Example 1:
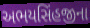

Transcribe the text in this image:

અભયસિંહજીના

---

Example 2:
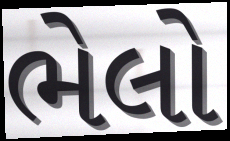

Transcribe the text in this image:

ભેલો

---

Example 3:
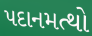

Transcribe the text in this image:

પદાનમત્થો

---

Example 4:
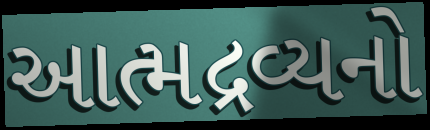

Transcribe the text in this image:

આત્મદ્રવ્યનો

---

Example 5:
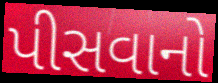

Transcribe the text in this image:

પીસવાનો